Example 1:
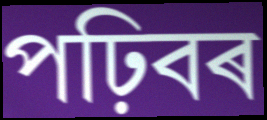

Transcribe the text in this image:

পঢ়িবৰ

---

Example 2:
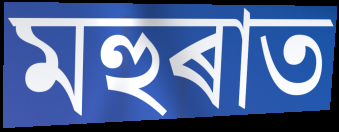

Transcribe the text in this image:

মহুৰাত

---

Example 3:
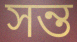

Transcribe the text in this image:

সন্ত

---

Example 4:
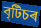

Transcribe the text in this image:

বৃটিচৰ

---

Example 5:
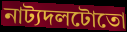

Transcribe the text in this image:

নাট্যদলটোতো